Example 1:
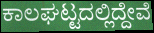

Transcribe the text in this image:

ಕಾಲಘಟ್ಟದಲ್ಲಿದ್ದೇವೆ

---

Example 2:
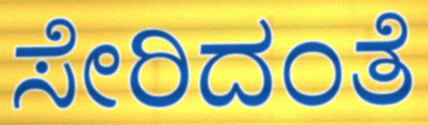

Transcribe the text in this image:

ಸೇರಿದಂತೆ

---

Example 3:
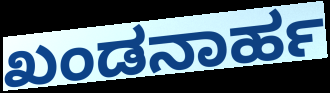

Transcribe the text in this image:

ಖಂಡನಾರ್ಹ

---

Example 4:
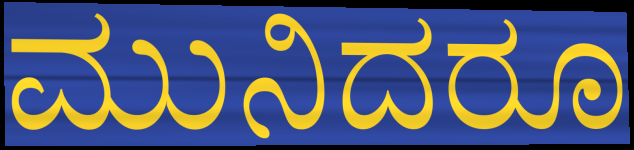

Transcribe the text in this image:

ಮುನಿದರೂ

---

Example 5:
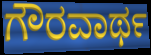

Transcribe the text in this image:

ಗೌರವಾರ್ಥ